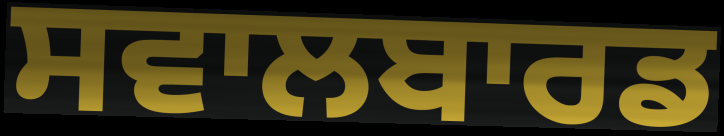
ਸਵਾਲਬਾਰਡ